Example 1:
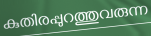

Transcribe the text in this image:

കുതിരപ്പുറത്തുവരുന്ന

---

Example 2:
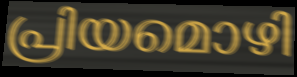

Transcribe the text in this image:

പ്രിയമൊഴി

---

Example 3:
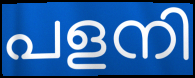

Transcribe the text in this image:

പളനി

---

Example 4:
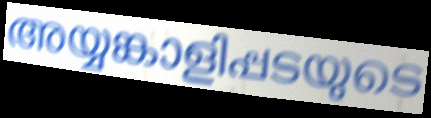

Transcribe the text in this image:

അയ്യങ്കാളിപ്പടയുടെ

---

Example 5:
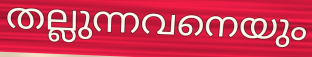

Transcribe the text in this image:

തല്ലുന്നവനെയും